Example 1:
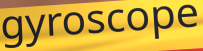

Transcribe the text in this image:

gyroscope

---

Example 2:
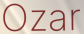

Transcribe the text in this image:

Ozar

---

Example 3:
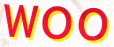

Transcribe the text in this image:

woo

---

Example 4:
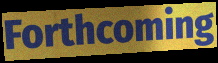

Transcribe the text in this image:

Forthcoming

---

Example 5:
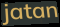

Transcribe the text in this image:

jatan